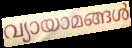
വ്യായാമങ്ങൾ